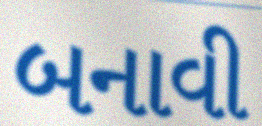
બનાવી